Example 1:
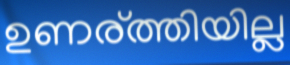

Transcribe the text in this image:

ഉണര്ത്തിയില്ല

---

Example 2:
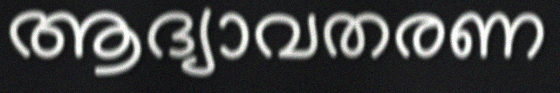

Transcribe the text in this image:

ആദ്യാവതരണ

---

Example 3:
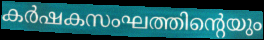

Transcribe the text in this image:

കർഷകസംഘത്തിന്റെയും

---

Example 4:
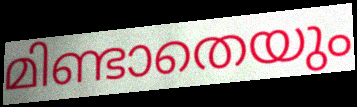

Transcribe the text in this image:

മിണ്ടാതെയും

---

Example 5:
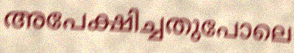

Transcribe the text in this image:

അപേക്ഷിച്ചതുപോലെ